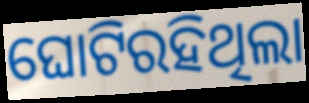
ଘୋଟିରହିଥିଲା